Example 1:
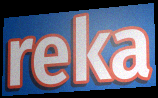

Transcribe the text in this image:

reka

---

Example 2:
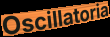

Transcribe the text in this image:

Oscillatoria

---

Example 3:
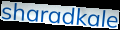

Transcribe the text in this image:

sharadkale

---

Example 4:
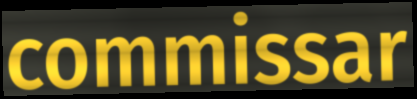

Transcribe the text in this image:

commissar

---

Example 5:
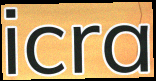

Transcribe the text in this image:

icra